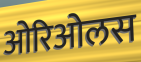
ओरिओलस